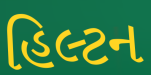
હિલ્ટન